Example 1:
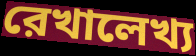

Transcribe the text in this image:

রেখালেখ্য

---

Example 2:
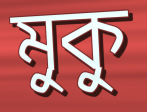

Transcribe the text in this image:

মুকু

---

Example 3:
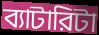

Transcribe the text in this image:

ব্যাটারিটা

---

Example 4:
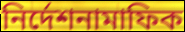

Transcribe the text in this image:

নির্দেশনামাফিক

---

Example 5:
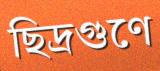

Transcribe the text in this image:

ছিদ্রগুণে